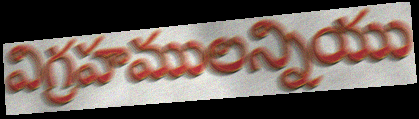
విగ్రహములన్నియు